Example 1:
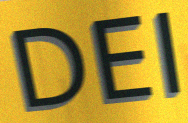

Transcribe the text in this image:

DEI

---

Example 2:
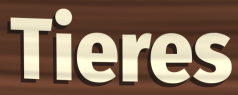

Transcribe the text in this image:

Tieres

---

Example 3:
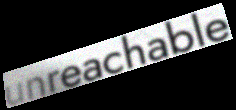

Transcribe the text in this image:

unreachable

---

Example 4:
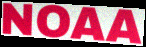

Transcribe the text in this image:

NOAA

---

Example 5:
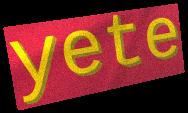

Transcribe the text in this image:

yete